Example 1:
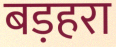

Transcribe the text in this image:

बड़हरा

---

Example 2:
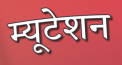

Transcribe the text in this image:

म्यूटेशन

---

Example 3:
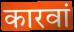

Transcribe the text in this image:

कारवां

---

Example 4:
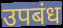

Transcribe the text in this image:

उपबंध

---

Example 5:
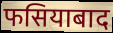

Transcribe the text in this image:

फसियाबाद